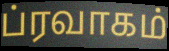
ப்ரவாகம்